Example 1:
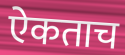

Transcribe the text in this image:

ऐकताच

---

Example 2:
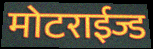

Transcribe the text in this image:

मोटराईज्ड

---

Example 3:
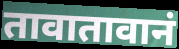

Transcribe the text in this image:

तावातावानं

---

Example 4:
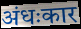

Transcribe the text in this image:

अंधःकार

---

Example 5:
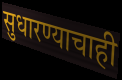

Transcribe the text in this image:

सुधारण्याचाही